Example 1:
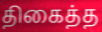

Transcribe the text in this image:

திகைத்த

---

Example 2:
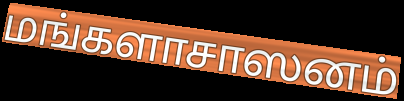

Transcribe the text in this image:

மங்களாசாஸனம்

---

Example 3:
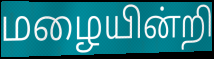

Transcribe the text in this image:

மழையின்றி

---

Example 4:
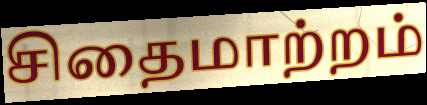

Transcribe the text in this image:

சிதைமாற்றம்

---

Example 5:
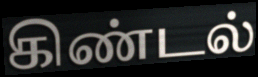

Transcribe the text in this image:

கிண்டல்